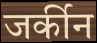
जर्कीन